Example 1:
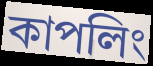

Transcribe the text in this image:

কাপলিং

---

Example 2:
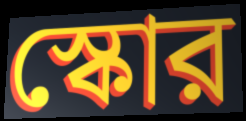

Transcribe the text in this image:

স্কোর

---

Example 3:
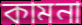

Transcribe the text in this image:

কামনা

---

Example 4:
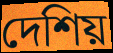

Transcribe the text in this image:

দেশিয়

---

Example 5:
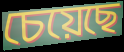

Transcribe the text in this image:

চেয়েছে